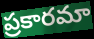
ప్రకారమా